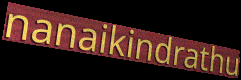
nanaikindrathu